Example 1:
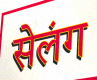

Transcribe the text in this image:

सेलंग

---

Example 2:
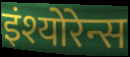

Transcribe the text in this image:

इंश्योरेन्स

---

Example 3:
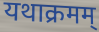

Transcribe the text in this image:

यथाक्रमम्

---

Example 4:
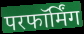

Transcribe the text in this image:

परफॉर्मिंग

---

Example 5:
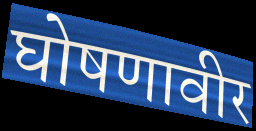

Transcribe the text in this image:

घोषणावीर